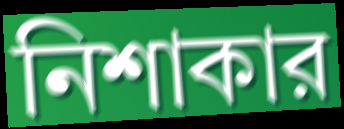
নিশাকার